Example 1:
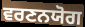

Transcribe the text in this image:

ਵਰਣਨਯੋਗ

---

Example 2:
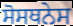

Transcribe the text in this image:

ਸੋਸਥਨੇਸ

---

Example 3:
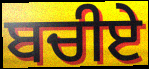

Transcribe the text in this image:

ਬਚੀਏ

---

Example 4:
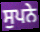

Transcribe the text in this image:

ਸੁਪਨੇ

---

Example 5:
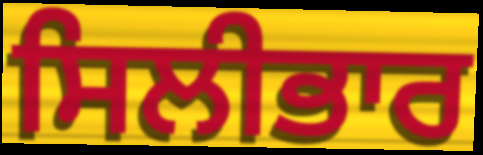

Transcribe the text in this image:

ਸਿਲੀਭਾਰ